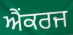
ਐਂਕਰਜ